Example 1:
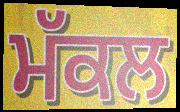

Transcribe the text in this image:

ਮੱਕਲ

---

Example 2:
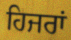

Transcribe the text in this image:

ਹਿਜਰਾਂ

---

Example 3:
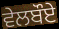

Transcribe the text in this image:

ਵੇਲਬੌਏ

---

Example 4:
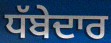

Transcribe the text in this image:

ਧੱਬੇਦਾਰ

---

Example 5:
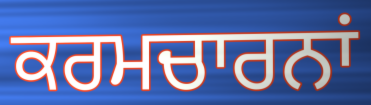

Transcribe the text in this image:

ਕਰਮਚਾਰਨਾਂ